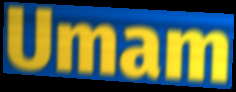
Umam